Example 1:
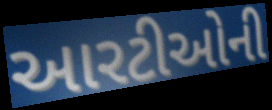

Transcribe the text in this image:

આરટીઓની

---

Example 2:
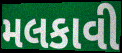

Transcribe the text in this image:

મલકાવી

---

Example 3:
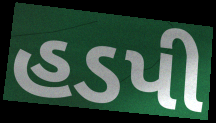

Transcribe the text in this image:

હડપી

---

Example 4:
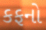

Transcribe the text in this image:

કફનો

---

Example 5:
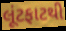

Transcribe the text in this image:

લૂંટફાટથી